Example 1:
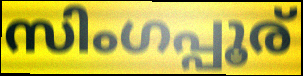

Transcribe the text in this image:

സിംഗപ്പൂര്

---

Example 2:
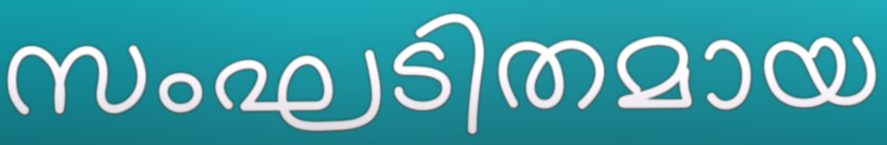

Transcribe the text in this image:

സംഘടിതമായ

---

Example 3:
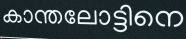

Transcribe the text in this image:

കാന്തലോട്ടിനെ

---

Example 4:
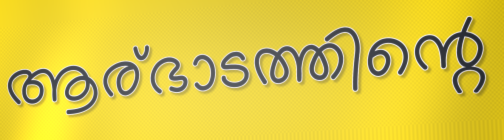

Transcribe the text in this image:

ആര്ഭാടത്തിന്റെ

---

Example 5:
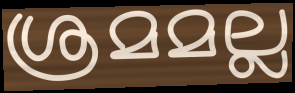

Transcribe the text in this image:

ശ്രമമല്ല